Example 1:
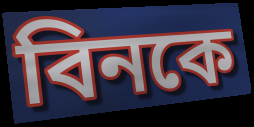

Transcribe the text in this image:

বিনকে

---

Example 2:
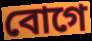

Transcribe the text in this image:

বোগে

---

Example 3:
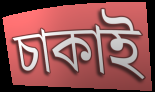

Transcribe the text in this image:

চাকাই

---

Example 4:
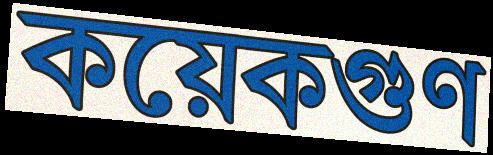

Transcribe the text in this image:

কয়েকগুণ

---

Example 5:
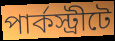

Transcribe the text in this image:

পার্কস্ট্রীটে